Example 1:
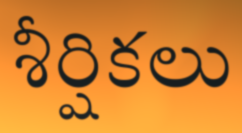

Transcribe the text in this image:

శీర్షికలు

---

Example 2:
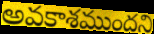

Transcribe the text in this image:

అవకాశముందని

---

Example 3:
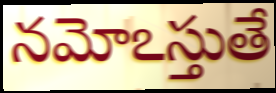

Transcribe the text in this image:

నమోఽస్తుతే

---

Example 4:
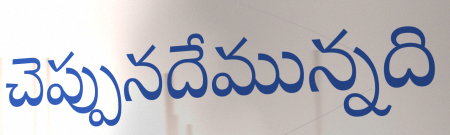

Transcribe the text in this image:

చెప్పునదేమున్నది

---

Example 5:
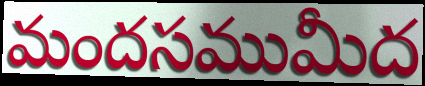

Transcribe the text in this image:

మందసముమీద